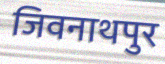
जिवनाथपुर